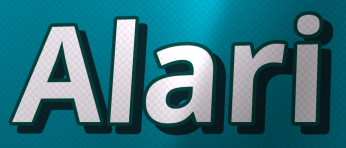
Alari